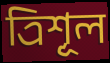
ত্ৰিশূল